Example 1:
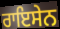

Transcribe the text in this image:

ਰਾਇਸੇਨ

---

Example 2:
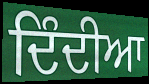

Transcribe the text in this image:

ਦਿੰਦੀਆ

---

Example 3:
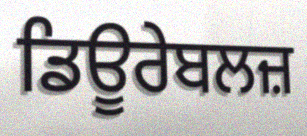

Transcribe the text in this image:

ਡਿਊਰੇਬਲਜ਼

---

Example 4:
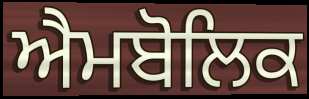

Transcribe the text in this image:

ਐਮਬੋਲਿਕ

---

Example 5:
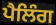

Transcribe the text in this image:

ਪੈਲਿੰਗ